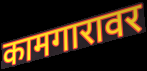
कामगारावर